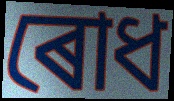
ৰোধ